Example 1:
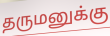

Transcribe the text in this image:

தருமனுக்கு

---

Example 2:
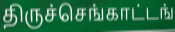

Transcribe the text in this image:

திருச்செங்காட்டங்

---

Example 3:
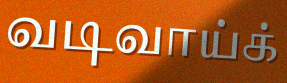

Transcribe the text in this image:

வடிவாய்க்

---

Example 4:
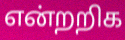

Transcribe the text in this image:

என்றறிக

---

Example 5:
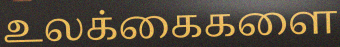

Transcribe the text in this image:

உலக்கைகளை